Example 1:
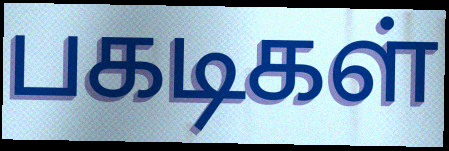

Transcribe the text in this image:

பகடிகள்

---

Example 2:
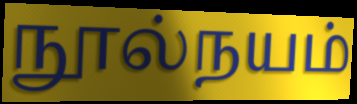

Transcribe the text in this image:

நூல்நயம்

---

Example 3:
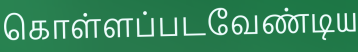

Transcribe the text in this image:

கொள்ளப்படவேண்டிய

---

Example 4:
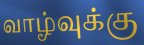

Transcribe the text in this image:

வாழ்வுக்கு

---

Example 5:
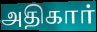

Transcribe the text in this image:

அதிகார்